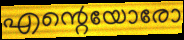
എന്റെയോരോ